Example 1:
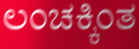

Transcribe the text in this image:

ಲಂಚಕ್ಕಿಂತ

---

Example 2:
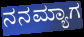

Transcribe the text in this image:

ನನಮ್ಯಾಗ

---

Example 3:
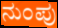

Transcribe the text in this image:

ನುಂಪು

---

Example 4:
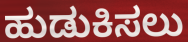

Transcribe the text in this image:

ಹುಡುಕಿಸಲು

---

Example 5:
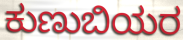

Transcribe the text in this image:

ಕುಣುಬಿಯರ